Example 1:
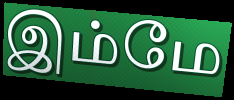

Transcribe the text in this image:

இம்மே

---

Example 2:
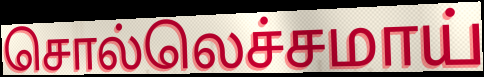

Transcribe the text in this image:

சொல்லெச்சமாய்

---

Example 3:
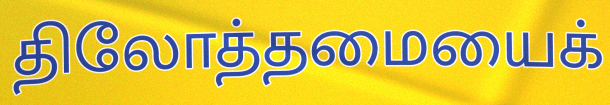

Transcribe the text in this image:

திலோத்தமையைக்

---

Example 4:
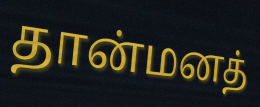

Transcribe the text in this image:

தான்மனத்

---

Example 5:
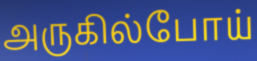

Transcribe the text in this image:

அருகில்போய்